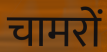
चामरों